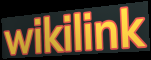
wikilink